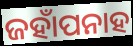
ଜହାଁପନାହ